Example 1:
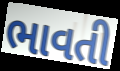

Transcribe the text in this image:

ભાવતી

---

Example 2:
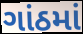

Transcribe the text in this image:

ગાંઠમાં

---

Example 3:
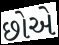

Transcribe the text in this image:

છોએ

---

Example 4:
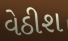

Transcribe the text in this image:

વેઠીશ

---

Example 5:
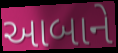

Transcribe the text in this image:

આબાને